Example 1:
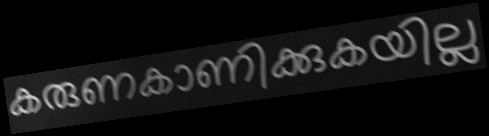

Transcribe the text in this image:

കരുണകാണിക്കുകയില്ല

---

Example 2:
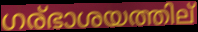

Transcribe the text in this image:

ഗര്ഭാശയത്തില്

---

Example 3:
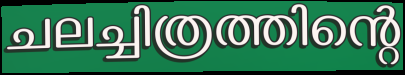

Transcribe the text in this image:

ചലച്ചിത്രത്തിന്റെ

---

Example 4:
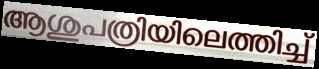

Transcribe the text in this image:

ആശുപത്രിയിലെത്തിച്ച്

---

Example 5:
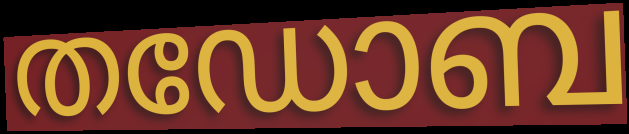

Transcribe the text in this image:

തഡോബ